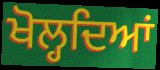
ਖੋਲ੍ਹਦਿਆਂ